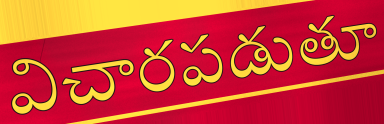
విచారపడుతూ